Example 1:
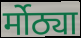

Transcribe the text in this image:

र्मोठ्या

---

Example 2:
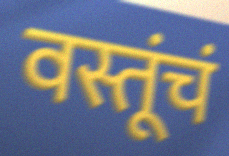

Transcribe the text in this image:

वस्तूंचं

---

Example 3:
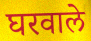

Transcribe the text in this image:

घरवाले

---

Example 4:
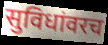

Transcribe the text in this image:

सुविधांवरच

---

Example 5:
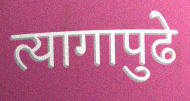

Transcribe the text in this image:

त्यागापुढे